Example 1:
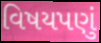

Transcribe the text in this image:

વિષયપણું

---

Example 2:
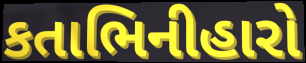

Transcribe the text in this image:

કતાભિનીહારો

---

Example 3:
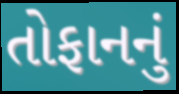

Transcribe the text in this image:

તોફાનનું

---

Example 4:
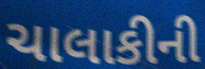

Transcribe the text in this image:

ચાલાકીની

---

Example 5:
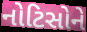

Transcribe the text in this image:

નોટિસોને